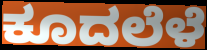
ಕೂದಲೆಳೆ